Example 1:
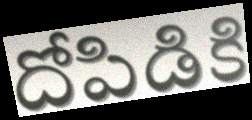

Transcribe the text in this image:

దోపిడికి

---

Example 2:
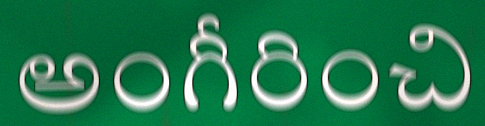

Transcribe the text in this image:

అంగీరించి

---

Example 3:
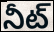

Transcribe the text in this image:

నీట్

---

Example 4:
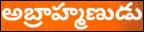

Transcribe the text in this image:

అబ్రాహ్మణుడు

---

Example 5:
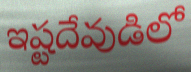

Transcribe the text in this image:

ఇష్టదేవుడిలో